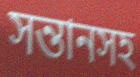
সন্তানসহ